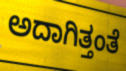
ಅದಾಗಿತ್ತಂತೆ